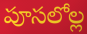
పూసలోల్ల